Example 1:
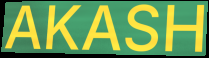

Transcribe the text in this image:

AKASH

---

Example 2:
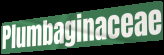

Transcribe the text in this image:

Plumbaginaceae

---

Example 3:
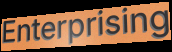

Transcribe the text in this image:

Enterprising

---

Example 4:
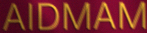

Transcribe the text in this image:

AIDMAM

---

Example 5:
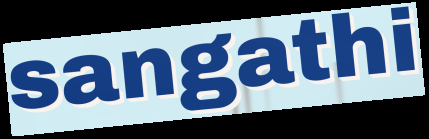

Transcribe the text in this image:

sangathi